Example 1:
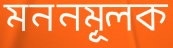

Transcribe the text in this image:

মননমূলক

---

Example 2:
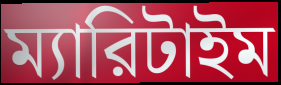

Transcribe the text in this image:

ম্যারিটাইম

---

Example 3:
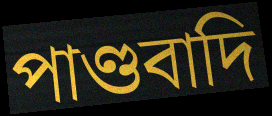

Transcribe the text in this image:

পাণ্ডবাদি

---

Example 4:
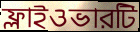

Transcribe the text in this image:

ফ্লাইওভারটি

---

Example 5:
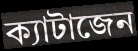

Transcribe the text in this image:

ক্যাটাজেন